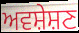
ਅਵਸ਼ੇਸ਼ਣ